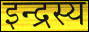
इन्द्रस्य